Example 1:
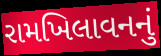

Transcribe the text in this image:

રામખિલાવનનું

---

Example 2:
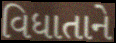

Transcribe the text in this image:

વિધાતાને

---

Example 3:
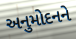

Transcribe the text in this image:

અનુમોદનને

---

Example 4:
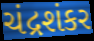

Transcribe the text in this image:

ચંદ્રશંકર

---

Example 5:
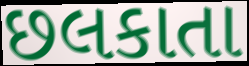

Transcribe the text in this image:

છલકાતા